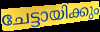
ചേട്ടായിക്കും